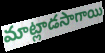
మాట్లాడసాగాయి